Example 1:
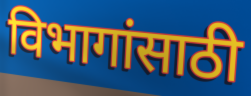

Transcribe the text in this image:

विभागांसाठी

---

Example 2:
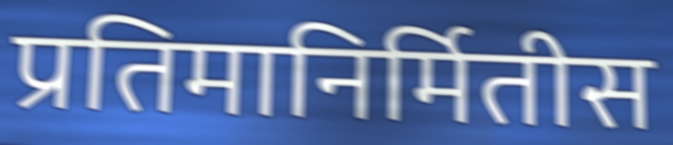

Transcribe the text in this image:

प्रतिमानिर्मितीस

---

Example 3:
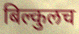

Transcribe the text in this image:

बिल्कुलच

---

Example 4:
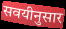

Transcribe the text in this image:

सवयीनुसार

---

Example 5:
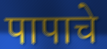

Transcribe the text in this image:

पापाचे